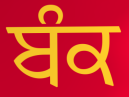
ਬੰਕ